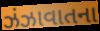
ઝંઝાવાતના